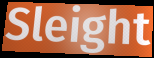
Sleight